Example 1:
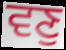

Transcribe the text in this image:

ਵਣੁ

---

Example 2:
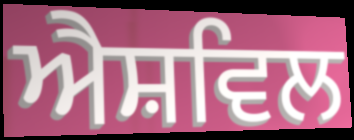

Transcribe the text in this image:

ਐਸ਼ਵਿਲ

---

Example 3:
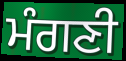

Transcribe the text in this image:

ਮੰਗਣੀ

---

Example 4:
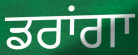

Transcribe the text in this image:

ਡਰਾਂਗਾ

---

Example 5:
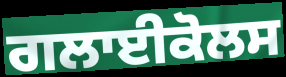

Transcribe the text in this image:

ਗਲਾਈਕੋਲਸ